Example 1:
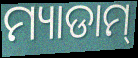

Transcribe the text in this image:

ମ୍ୟାଡାମ୍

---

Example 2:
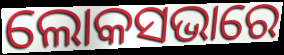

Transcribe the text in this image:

ଲୋକସଭାରେ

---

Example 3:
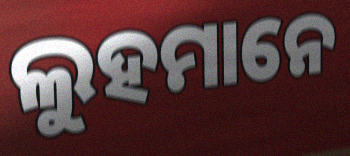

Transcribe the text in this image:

ଲୁହମାନେ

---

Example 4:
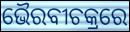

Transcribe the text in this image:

ଭୈରବୀଚକ୍ରରେ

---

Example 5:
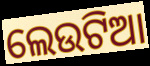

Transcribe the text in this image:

ଲେଉଟିଆ